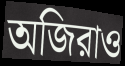
অজিরাও